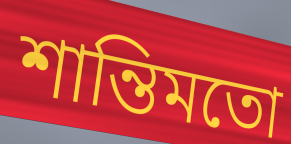
শান্তিমতো